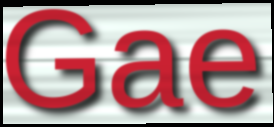
Gae